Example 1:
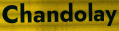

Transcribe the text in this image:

Chandolay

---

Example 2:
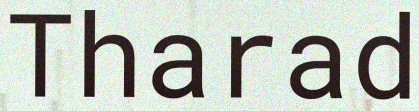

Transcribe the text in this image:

Tharad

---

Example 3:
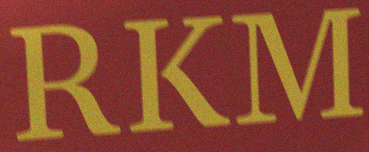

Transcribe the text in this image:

RKM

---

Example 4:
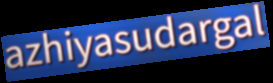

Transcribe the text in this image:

azhiyasudargal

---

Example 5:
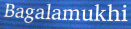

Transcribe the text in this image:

Bagalamukhi